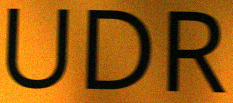
UDR